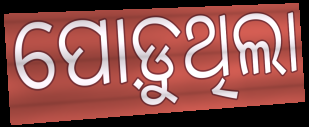
ପୋଡ଼ୁଥିଲା